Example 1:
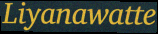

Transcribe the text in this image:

Liyanawatte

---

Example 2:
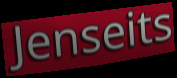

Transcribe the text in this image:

Jenseits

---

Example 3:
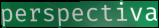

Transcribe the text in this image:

perspectiva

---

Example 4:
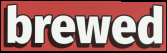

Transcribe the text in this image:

brewed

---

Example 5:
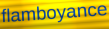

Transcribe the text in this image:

flamboyance